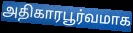
அதிகாரபூர்வமாக